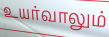
உயர்வாலும்